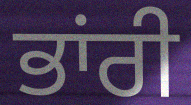
ਭਾਂਰੀ